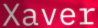
Xaver